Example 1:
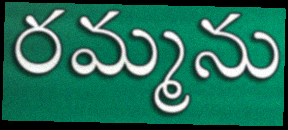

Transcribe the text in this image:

రమ్మను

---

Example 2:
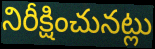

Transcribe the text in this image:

నిరీక్షించునట్లు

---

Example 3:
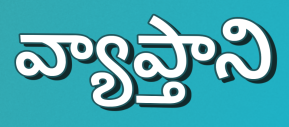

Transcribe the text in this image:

వ్యాప్తాని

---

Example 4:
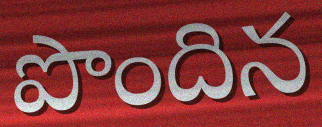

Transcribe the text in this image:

పొందిన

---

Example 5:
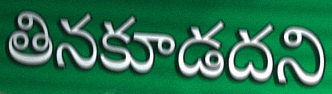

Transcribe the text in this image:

తినకూడదని